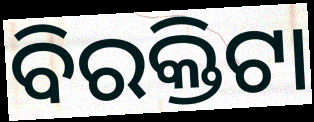
ବିରକ୍ତିଟା